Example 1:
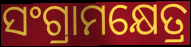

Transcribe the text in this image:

ସଂଗ୍ରାମକ୍ଷେତ୍ର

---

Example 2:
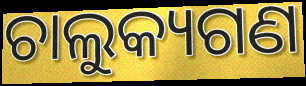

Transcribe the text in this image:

ଚାଲୁକ୍ୟଗଣ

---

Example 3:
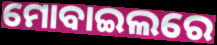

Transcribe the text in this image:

ମୋବାଇଲରେ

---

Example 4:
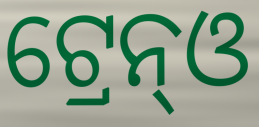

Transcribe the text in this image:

ଟ୍ରେନ୍ଓ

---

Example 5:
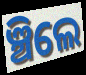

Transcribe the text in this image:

ଞ୍ଚିଲେ